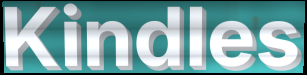
Kindles